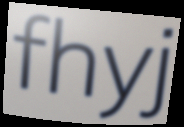
fhyj